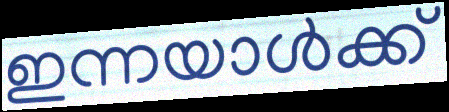
ഇന്നയാൾക്ക്